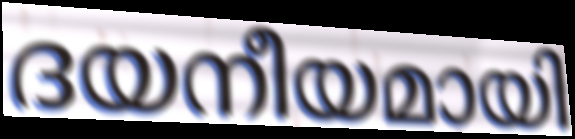
ദയനീയമായി